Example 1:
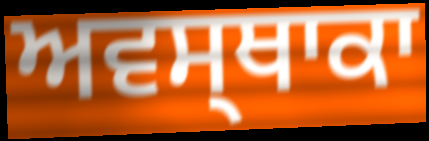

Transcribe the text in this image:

ਅਵਸ੍ਥਾਕਾ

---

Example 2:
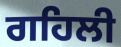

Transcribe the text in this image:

ਗਹਿਲੀ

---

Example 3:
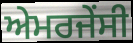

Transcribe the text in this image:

ਅੇਮਰਜੇਂਸੀ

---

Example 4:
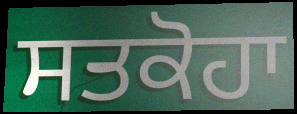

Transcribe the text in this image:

ਸਤਕੋਹਾ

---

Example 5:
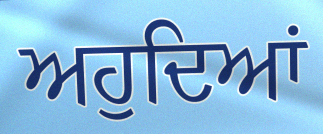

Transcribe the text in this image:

ਅਹੁਦਿਆਂ